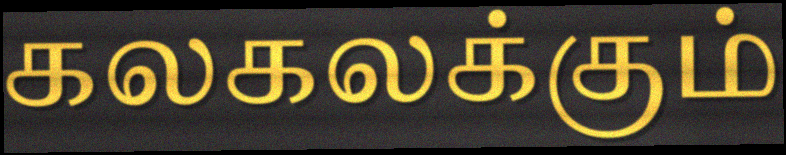
கலகலக்கும்